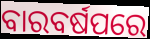
ବାରବର୍ଷପରେ